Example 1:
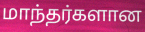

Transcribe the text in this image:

மாந்தர்களான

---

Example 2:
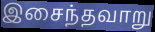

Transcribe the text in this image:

இசைந்தவாறு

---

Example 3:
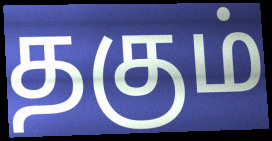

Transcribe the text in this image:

தகும்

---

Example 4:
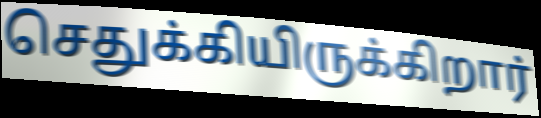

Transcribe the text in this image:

செதுக்கியிருக்கிறார்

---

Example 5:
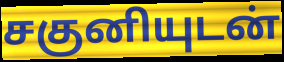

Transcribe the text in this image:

சகுனியுடன்